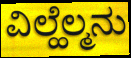
ವಿಲ್ಹೆಲ್ಮನು